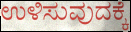
ಉಳಿಸುವುದಕ್ಕೆ